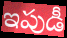
ఇపుడీ